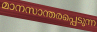
മാനസാന്തരപ്പെടുന്ന